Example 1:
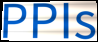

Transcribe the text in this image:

PPIs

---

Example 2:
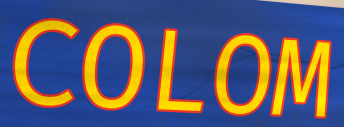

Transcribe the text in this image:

COLOM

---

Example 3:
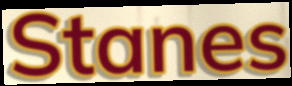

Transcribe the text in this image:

Stanes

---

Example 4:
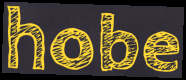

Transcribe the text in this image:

hobe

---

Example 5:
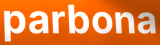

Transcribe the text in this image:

parbona